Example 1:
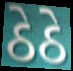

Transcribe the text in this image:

ઠેઠે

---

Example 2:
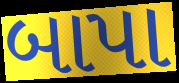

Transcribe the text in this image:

બાપા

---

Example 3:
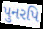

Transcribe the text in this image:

પુનરપિ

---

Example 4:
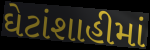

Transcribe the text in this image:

ઘેટાંશાહીમાં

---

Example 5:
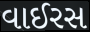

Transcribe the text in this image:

વાઈરસ